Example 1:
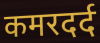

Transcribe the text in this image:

कमरदर्द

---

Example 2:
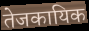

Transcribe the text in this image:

तेजकायिक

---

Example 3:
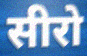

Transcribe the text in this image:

सीरो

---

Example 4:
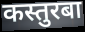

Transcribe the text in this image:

कस्तुरबा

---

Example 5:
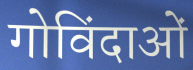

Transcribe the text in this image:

गोविंदाओं